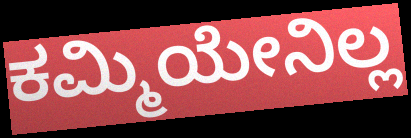
ಕಮ್ಮಿಯೇನಿಲ್ಲ